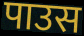
पाउस